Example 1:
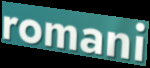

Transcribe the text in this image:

romani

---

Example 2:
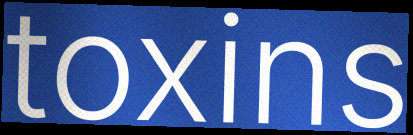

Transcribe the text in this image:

toxins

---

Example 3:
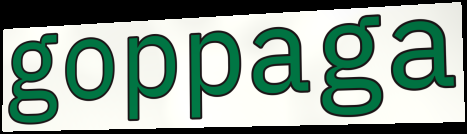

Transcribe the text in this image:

goppaga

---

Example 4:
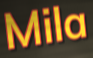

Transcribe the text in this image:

Mila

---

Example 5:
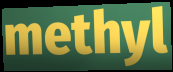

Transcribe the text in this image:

methyl